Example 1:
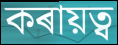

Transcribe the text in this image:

কৰায়ত্ব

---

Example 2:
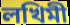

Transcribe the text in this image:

লখিমী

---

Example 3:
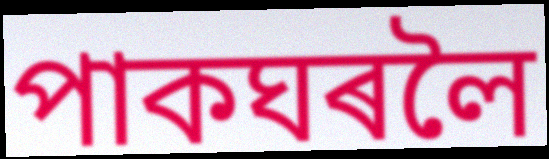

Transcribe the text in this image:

পাকঘৰলৈ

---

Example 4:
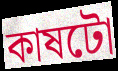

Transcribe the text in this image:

কাষটো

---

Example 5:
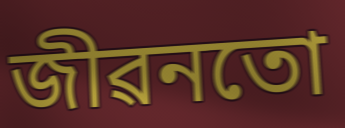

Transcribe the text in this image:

জীৱনতো